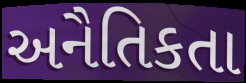
અનૈતિકતા